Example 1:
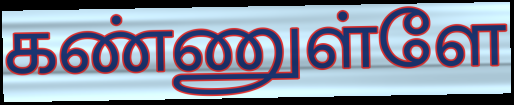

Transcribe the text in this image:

கண்ணுள்ளே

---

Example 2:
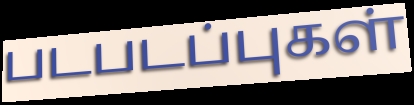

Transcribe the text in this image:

படபடப்புகள்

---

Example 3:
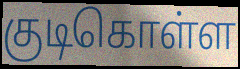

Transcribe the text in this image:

குடிகொள்ள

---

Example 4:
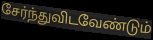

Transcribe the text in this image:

சேர்ந்துவிடவேண்டும்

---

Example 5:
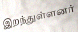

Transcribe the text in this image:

இறந்துள்ளனர்